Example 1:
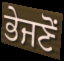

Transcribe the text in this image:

ਭੇਜਣੋਂ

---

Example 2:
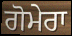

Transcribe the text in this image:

ਗੋਮੇਰਾ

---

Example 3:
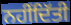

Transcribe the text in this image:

ਨਹੀਂਦਿੱਤੀ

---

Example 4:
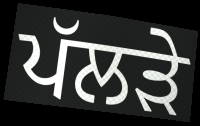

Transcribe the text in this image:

ਪੱਲੜੇ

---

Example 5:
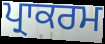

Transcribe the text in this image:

ਪ੍ਰਾਕਰਮ